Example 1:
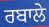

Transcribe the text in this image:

ਰਬਾਲੇ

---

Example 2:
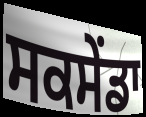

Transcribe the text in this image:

ਸਕਸੇਂਡਾ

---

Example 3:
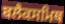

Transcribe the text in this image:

ਬਲੈਕਸਮਿਥ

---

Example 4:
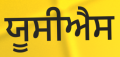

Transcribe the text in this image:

ਯੂਸੀਐਸ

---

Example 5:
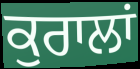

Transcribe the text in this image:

ਕੁਰਾਲਾਂ